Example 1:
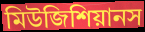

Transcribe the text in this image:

মিউজিশিয়ানস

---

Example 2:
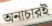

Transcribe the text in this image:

অনাচারই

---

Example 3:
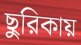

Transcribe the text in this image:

ছুরিকায়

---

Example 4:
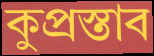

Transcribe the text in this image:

কুপ্রস্তাব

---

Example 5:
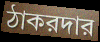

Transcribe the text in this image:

ঠাকরদার